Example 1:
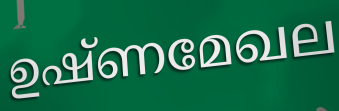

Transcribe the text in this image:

ഉഷ്ണമേഖല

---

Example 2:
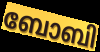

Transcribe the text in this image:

ബോബി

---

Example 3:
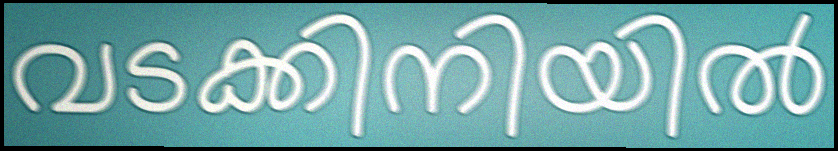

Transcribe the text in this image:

വടക്കിനിയിൽ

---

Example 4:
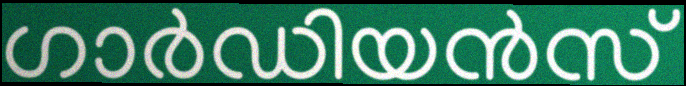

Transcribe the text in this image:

ഗാർഡിയൻസ്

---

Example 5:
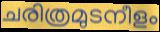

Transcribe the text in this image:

ചരിത്രമുടനീളം